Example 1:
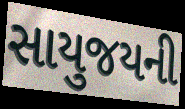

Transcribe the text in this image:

સાયુજયની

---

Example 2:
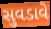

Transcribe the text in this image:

સુવડાવે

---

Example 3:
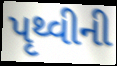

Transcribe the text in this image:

પૃથ્વીની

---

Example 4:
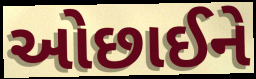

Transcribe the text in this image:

ઓછાઈને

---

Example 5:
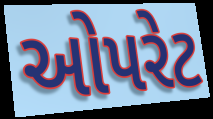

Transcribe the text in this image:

ઓપરેટ